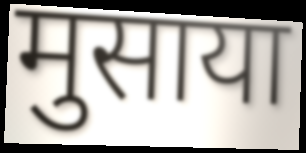
मुसाया